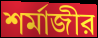
শর্মাজীর